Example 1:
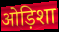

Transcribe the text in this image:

ओड़िशा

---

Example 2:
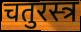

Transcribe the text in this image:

चतुरस्त्र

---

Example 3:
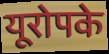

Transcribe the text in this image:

यूरोपके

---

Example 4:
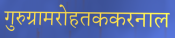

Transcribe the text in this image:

गुरुग्रामरोहतककरनाल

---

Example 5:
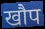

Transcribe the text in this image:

खौप